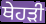
ਥੇਹੜੀ